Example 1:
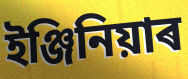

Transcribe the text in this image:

ইঞ্জিনিয়াৰ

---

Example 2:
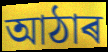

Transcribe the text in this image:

আঠাৰ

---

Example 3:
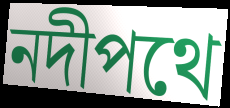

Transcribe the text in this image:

নদীপথে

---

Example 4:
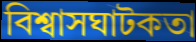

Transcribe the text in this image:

বিশ্বাসঘাটকতা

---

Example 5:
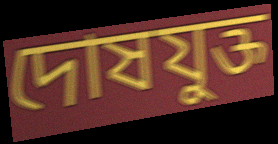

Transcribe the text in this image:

দোষযুক্ত